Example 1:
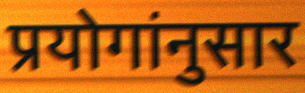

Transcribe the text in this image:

प्रयोगांनुसार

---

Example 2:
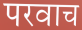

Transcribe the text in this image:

परवाच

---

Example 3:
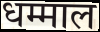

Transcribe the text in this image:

धम्माल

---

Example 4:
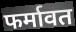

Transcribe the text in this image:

फर्मावत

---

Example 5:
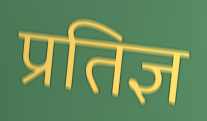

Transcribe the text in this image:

प्रतिज्ञ